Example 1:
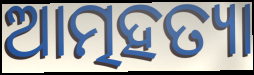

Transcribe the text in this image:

ଆତ୍ମହତ୍ୟା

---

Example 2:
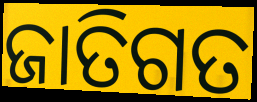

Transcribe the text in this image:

ଜାତିଗତ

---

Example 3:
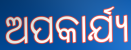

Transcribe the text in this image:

ଅପକାର୍ଯ୍ୟ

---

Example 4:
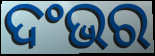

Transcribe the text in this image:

ଦଂଭର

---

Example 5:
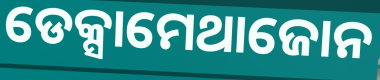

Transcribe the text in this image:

ଡେକ୍ସାମେଥାଜୋନ